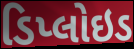
ડિપ્લોઇડ